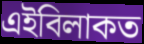
এইবিলাকত